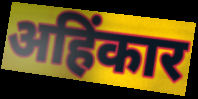
अहिंकार